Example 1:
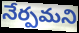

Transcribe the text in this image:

నేర్పమని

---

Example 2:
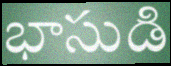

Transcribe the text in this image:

భాసుడి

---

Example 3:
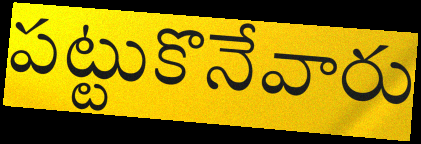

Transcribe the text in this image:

పట్టుకొనేవారు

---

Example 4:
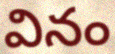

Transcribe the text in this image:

వినం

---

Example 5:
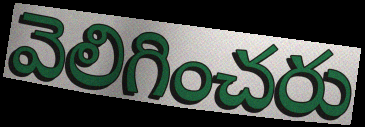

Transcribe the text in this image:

వెలిగించరు